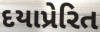
દયાપ્રેરિત